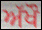
ਅੱਖੌ